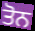
ਤੋਨ